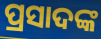
ପ୍ରସାଦଙ୍କ